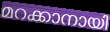
മറക്കാനായി